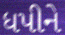
ધપીને